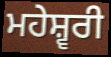
ਮਹੇਸ਼੍ਵਰੀ